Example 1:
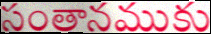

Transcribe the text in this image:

సంతానముకు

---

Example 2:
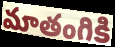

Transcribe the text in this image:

మాతంగికి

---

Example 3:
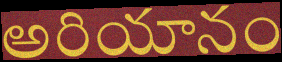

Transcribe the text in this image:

అరియానం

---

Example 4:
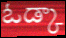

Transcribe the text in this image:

ఓడ్కా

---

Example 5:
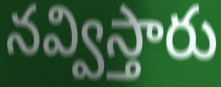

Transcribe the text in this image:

నవ్విస్తారు